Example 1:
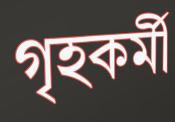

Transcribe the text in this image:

গৃহকর্মী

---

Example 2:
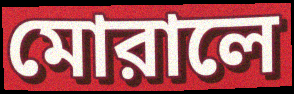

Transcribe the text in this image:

মোরালে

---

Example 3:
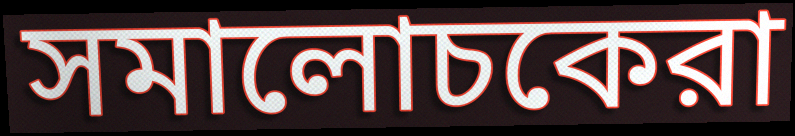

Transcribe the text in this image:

সমালোচকেরা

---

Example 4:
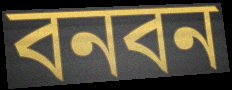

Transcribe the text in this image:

বনবন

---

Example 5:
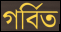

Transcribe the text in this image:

গর্বিত